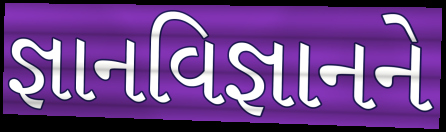
જ્ઞાનવિજ્ઞાનને